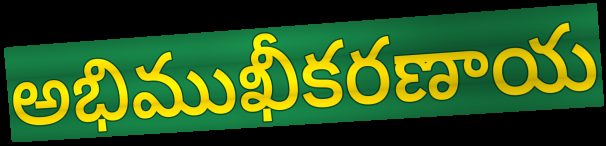
అభిముఖీకరణాయ